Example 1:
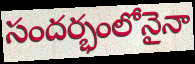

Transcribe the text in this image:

సందర్భంలోనైనా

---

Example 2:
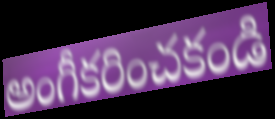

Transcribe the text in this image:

అంగీకరించకండి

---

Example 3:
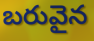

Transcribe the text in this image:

బరువైన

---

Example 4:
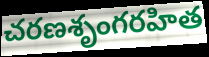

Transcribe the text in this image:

చరణశృంగరహిత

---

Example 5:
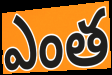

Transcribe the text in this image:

ఎంత